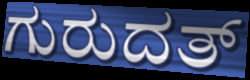
ಗುರುದತ್